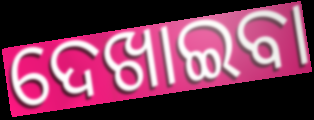
ଦେଖାଇବା